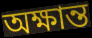
অক্ষান্ত